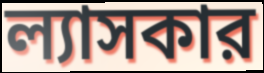
ল্যাসকার